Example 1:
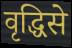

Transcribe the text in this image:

वृद्धिसे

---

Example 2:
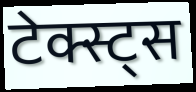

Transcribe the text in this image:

टेक्स्ट्स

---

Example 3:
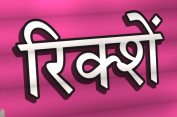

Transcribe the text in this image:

रिक्शें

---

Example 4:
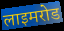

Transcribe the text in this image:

लाइमरोड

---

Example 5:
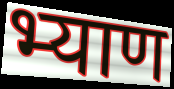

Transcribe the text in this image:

भ्याण